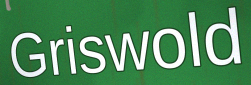
Griswold